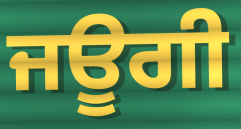
ਜਊਗੀ